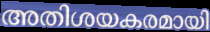
അതിശയകരമായി